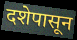
दशेपासून